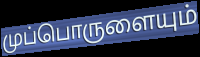
முப்பொருளையும்